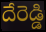
దేరెడ్డి